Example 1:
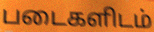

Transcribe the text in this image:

படைகளிடம்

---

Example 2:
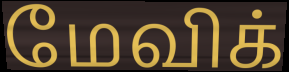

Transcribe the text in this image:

மேவிக்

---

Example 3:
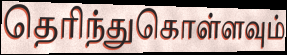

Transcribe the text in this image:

தெரிந்துகொள்ளவும்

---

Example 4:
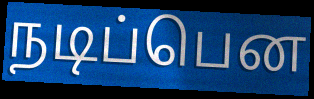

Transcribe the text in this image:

நடிப்பென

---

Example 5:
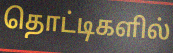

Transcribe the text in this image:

தொட்டிகளில்